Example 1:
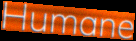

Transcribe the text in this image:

Humane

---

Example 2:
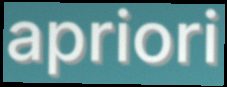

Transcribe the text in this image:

apriori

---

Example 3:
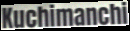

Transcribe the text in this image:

Kuchimanchi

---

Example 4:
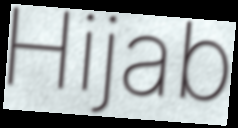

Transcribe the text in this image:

Hijab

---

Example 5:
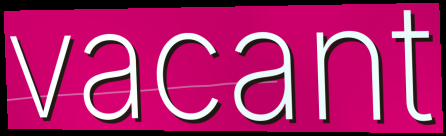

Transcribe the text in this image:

vacant